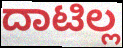
ದಾಟಿಲ್ಲ